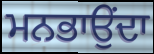
ਮਨਭਾਉਂਦਾ